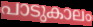
പാടുകാലം